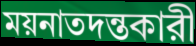
ময়নাতদন্তকারী